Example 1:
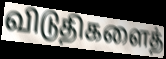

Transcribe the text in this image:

விடுதிகளைத்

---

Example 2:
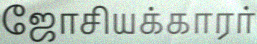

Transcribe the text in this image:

ஜோசியக்காரர்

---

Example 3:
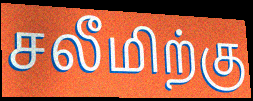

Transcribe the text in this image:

சலீமிற்கு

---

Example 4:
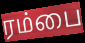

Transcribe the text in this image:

ரம்பை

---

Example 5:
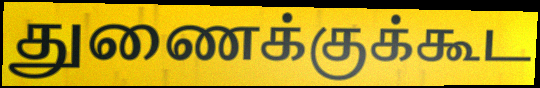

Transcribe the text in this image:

துணைக்குக்கூட